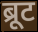
ब्रूट